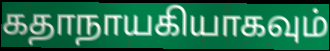
கதாநாயகியாகவும்